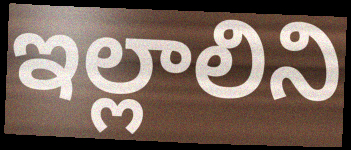
ఇల్లాలిని